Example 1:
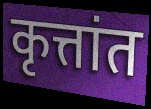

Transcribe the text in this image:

कृत्तांत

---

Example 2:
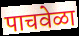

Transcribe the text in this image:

पाचवेळा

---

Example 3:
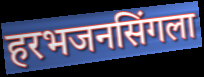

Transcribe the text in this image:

हरभजनसिंगला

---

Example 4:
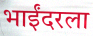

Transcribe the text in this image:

भाईंदरला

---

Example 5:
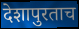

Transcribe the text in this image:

देशापुरताच